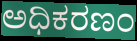
ಅಧಿಕರಣಂ